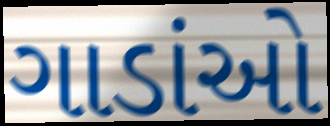
ગાડાંઓ